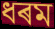
ধৰম